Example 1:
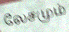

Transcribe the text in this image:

லேசமும்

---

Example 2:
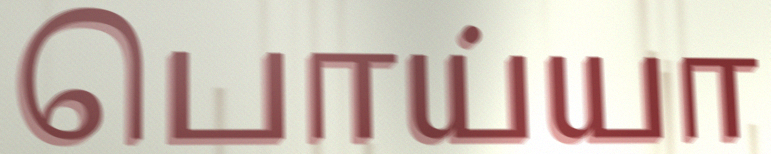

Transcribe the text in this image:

பொய்யா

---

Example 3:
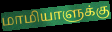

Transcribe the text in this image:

மாமியாளுக்கு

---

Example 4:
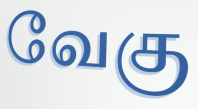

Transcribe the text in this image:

வேகு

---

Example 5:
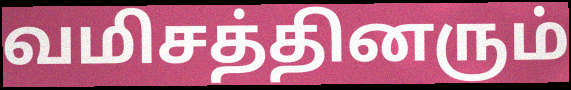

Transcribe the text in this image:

வமிசத்தினரும்